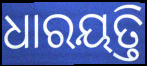
ଧାରୟତ୍ତି